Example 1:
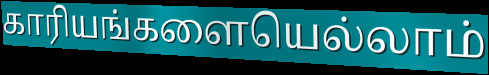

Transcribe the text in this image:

காரியங்களையெல்லாம்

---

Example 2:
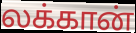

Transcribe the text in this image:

லக்கான்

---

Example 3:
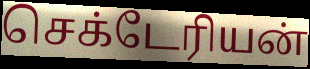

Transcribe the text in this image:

செக்டேரியன்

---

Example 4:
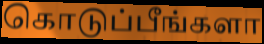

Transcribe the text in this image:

கொடுப்பீங்களா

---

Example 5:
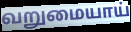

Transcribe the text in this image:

வறுமையாய்